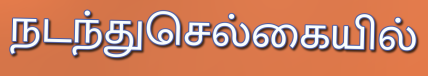
நடந்துசெல்கையில்